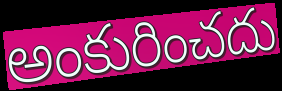
అంకురించదు